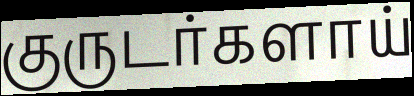
குருடர்களாய்